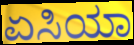
ಏಸಿಯಾ